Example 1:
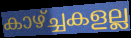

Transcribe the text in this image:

കാഴ്ച്ചകളല്ല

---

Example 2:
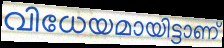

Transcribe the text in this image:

വിധേയമായിട്ടാണ്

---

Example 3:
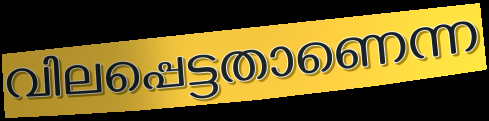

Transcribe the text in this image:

വിലപ്പെട്ടതാണെന്ന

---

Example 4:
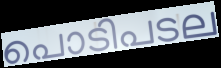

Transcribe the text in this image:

പൊടിപടല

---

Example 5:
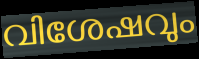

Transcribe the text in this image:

വിശേഷവും